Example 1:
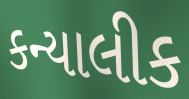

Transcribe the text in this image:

કન્યાલીક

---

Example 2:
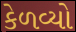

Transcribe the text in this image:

કેળવ્યો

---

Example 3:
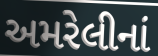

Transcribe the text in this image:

અમરેલીનાં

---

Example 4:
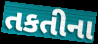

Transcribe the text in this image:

તકતીના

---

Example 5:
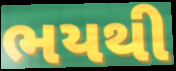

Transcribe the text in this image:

ભયથી